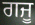
ਗਜੂ